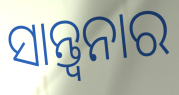
ସାନ୍ତ୍ବନାର